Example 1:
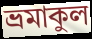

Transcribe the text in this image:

ভ্রমাকুল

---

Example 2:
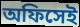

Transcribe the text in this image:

অফিসেই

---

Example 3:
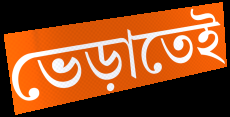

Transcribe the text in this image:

ভেড়াতেই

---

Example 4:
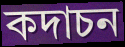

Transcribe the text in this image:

কদাচন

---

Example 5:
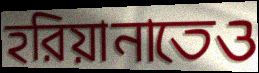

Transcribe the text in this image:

হরিয়ানাতেও